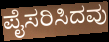
ಪೈಸರಿಸಿದವು